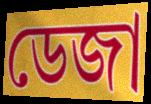
ডেজা